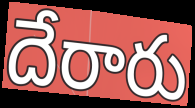
దేరారు